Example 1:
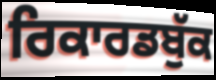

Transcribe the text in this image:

ਰਿਕਾਰਡਬੁੱਕ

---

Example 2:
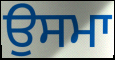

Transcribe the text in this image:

ਉਸਮਾ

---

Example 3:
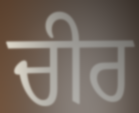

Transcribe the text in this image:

ਚੀਰ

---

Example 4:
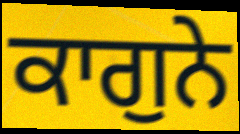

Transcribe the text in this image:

ਕਾਗੁਨੇ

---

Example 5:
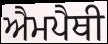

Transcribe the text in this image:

ਐਮਪੈਥੀ